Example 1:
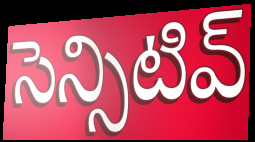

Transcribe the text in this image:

సెన్సిటివ్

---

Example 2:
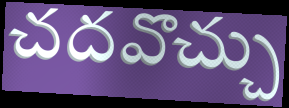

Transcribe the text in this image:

చదవొచ్చు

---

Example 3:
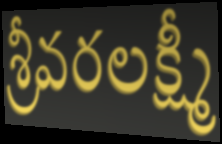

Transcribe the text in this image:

శ్రీవరలక్ష్మీ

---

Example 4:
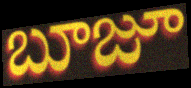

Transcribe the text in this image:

బూజూ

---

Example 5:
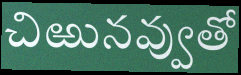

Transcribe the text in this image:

చిఱునవ్వుతో